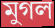
মুগল